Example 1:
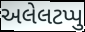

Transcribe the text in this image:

અલેલટપ્પુ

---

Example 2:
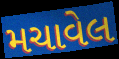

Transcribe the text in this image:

મચાવેલ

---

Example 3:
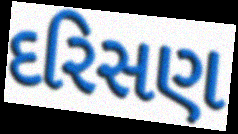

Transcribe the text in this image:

દરિસણ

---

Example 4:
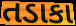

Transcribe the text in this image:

તડાકા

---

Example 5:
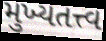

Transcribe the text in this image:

મુખ્યતત્ત્વ